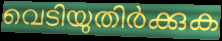
വെടിയുതിർക്കുക